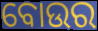
ବୋଉର